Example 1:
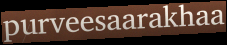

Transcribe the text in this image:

purveesaarakhaa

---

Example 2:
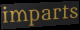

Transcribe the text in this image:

imparts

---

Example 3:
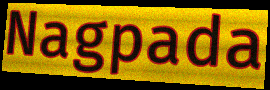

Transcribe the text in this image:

Nagpada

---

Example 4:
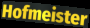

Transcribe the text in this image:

Hofmeister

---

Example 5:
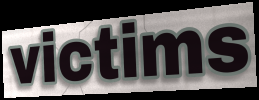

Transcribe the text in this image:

victims